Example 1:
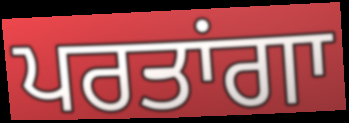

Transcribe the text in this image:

ਪਰਤਾਂਗਾ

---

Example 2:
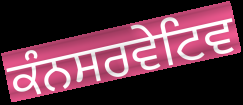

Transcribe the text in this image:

ਕੰਨਸਰਵੇਟਿਵ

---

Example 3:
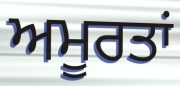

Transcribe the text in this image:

ਅਮੂਰਤਾਂ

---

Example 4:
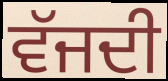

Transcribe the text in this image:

ਵੱਜਦੀ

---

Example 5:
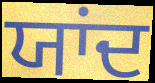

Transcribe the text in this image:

ਯਾਂਦ